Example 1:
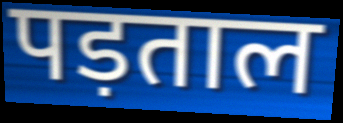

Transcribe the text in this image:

पड़ताल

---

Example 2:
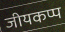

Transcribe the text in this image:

जीयकप्प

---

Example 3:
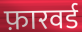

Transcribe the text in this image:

फ़ारवर्ड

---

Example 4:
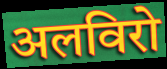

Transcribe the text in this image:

अलविरो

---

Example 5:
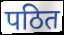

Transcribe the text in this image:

पठित